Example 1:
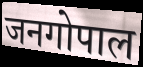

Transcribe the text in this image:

जनगोपाल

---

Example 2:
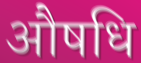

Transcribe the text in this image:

औषधि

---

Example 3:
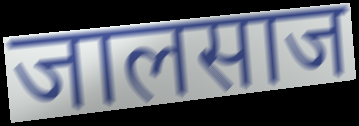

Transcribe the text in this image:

जालसाज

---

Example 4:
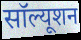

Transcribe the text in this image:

सॉल्यूशन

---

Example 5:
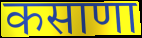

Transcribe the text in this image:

कसाणा